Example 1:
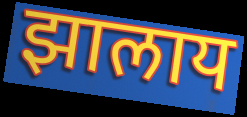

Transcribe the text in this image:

झालाय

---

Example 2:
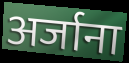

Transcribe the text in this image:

अर्जाना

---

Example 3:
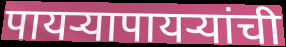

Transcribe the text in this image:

पायऱ्यापायऱ्यांची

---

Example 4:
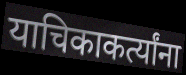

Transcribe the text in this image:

याचिकाकर्त्यांना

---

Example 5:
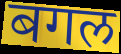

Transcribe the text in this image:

बगल